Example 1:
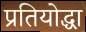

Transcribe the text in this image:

प्रतियोद्धा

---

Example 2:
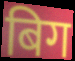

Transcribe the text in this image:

बिग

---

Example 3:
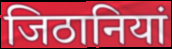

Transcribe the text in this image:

जिठानियां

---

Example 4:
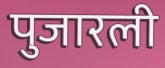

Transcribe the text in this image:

पुजारली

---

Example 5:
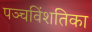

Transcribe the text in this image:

पञ्चविंशतिका